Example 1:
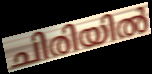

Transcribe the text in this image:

ചിരിയിൽ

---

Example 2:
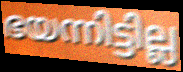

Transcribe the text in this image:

ഭയന്നിട്ടില്ല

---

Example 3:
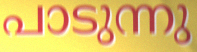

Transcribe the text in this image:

പാടുന്നു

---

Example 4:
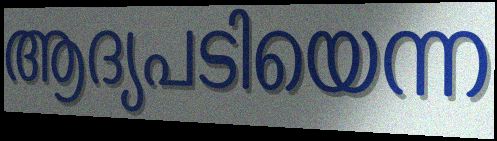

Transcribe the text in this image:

ആദ്യപടിയെന്ന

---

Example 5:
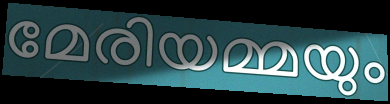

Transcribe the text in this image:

മേരിയമ്മയും